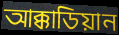
আক্কাডিয়ান